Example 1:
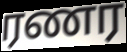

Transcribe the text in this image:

ரணர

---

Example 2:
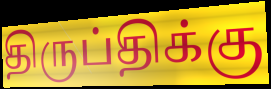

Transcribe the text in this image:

திருப்திக்கு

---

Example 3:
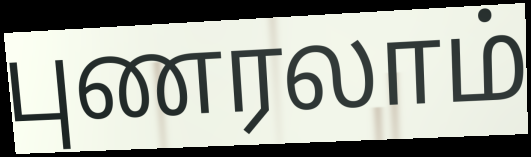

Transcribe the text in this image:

புணரலாம்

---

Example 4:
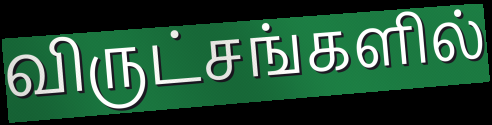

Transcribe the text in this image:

விருட்சங்களில்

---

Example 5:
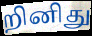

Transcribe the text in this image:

றினிது